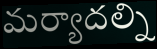
మర్యాదల్ని